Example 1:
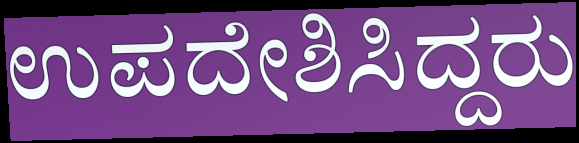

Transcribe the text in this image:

ಉಪದೇಶಿಸಿದ್ದರು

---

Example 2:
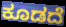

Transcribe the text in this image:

ಕೂಡದೆ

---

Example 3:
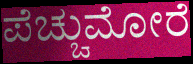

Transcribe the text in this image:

ಪೆಚ್ಚುಮೋರೆ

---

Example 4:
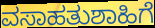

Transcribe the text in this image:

ವಸಾಹತುಶಾಹಿಗೆ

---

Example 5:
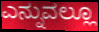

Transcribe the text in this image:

ಎನ್ನುವಲ್ಲೂ